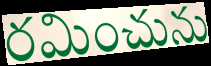
రమించును